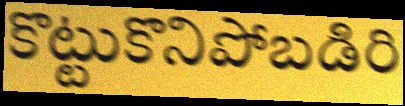
కొట్టుకొనిపోబడిరి